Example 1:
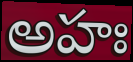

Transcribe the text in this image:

అహః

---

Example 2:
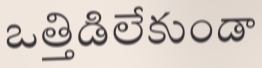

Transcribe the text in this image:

ఒత్తిడిలేకుండా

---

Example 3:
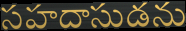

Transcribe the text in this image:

సహదాసుడను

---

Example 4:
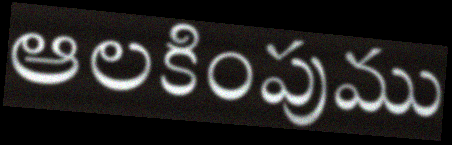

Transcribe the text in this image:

ఆలకింపుము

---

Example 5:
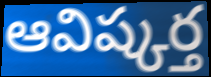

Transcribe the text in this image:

ఆవిష్కర్త